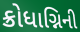
ક્રોધાગ્નિની